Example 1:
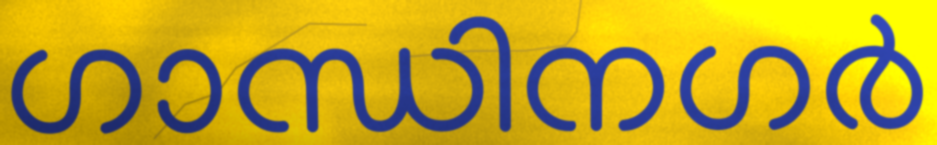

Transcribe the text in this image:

ഗാന്ധിനഗർ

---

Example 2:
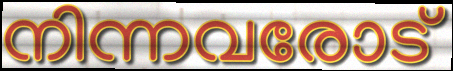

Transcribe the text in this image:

നിന്നവരോട്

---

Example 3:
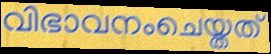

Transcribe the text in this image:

വിഭാവനംചെയ്തത്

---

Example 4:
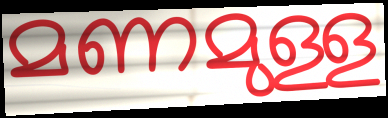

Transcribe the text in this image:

മണമുള്ള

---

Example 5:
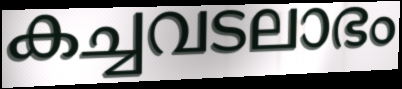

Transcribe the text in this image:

കച്ചവടലാഭം